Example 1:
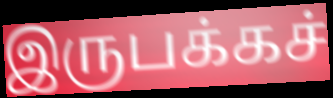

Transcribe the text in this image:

இருபக்கச்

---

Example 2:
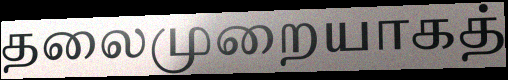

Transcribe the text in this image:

தலைமுறையாகத்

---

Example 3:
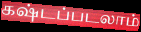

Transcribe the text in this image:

கஷ்டப்படலாம்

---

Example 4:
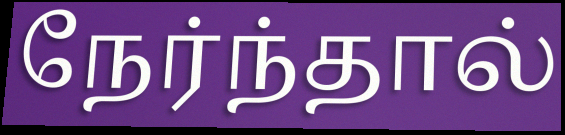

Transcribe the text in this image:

நேர்ந்தால்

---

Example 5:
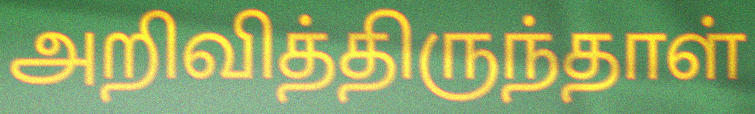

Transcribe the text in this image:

அறிவித்திருந்தாள்